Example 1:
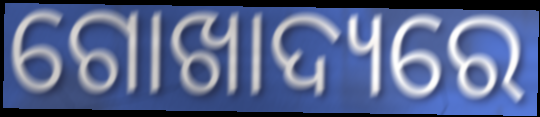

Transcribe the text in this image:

ଗୋଖାଦ୍ୟରେ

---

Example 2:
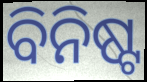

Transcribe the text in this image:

ବିନିଷ୍ଟ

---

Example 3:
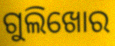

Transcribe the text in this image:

ଗୁଲିଖୋର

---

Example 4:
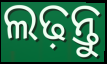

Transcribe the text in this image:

ଲଢ଼ନ୍ତୁ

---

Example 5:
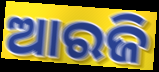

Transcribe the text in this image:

ଆରଜି